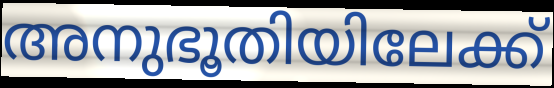
അനുഭൂതിയിലേക്ക്